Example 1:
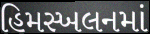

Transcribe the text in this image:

હિમસ્ખલનમાં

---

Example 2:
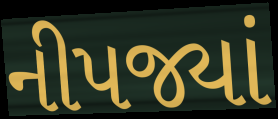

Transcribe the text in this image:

નીપજ્યાં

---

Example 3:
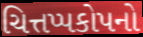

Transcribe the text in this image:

ચિત્તપ્પકોપનો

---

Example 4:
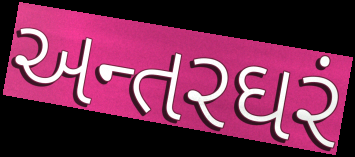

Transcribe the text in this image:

અન્તરઘરં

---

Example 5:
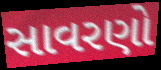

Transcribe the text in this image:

સાવરણો